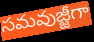
సమవుజ్జీగా